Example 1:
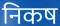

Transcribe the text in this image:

निकष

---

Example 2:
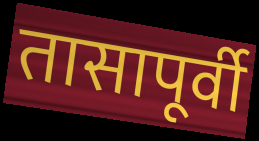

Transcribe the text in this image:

तासापूर्वी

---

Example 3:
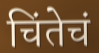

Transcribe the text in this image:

चिंतेचं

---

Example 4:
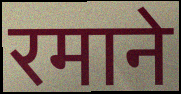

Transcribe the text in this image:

रमाने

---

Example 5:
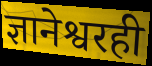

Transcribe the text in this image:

ज्ञानेश्वरही